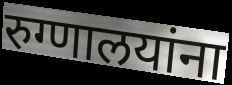
रुग्णालयांना